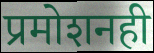
प्रमोशनही